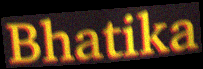
Bhatika